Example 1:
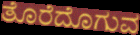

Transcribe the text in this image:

ತೊರೆದೊಗುವ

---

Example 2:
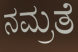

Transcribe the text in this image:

ನಮ್ರತೆ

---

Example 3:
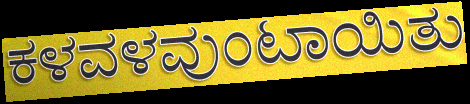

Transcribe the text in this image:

ಕಳವಳವುಂಟಾಯಿತು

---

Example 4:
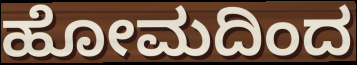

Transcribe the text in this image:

ಹೋಮದಿಂದ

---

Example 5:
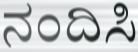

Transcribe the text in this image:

ನಂದಿಸಿ